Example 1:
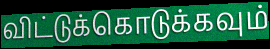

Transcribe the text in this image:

விட்டுக்கொடுக்கவும்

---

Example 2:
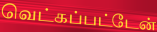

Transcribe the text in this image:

வெட்கப்பட்டேன்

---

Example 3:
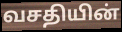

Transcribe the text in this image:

வசதியின்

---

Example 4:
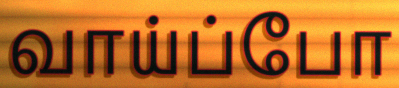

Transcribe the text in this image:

வாய்ப்போ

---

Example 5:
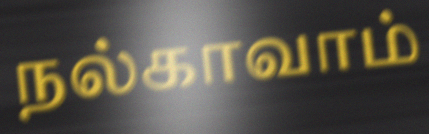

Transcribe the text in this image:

நல்காவாம்